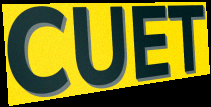
CUET